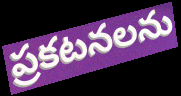
ప్రకటనలను